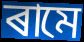
ৰামে